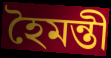
হৈমন্তী